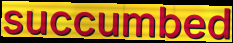
succumbed